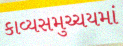
કાવ્યસમુચ્ચયમાં